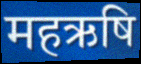
महऋषि